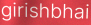
girishbhai